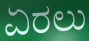
ಏರಲು